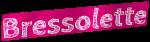
Bressolette